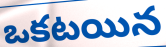
ఒకటయిన